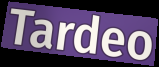
Tardeo